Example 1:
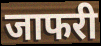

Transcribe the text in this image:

जाफरी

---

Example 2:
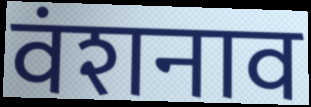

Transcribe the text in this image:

वंशनाव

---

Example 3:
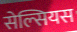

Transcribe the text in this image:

सेल्सियस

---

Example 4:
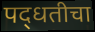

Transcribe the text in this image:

पद्धतीचा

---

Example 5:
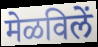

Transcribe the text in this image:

मेळविलें